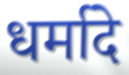
धर्मादे